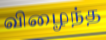
விழைந்த